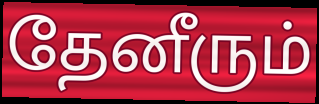
தேனீரும்